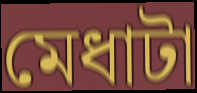
মেধাটা